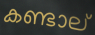
കണ്ടാല്